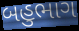
બહુભાગ